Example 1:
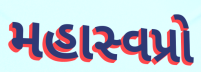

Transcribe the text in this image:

મહાસ્વપ્રો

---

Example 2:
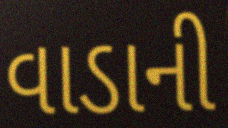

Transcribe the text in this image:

વાડાની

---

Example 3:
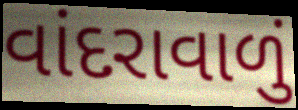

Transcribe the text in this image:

વાંદરાવાળું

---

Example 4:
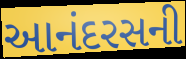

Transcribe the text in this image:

આનંદરસની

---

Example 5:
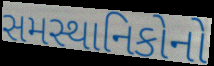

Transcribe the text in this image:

સમસ્થાનિકોનો